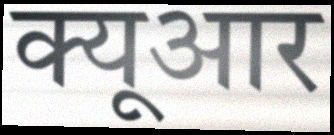
क्‍यूआर